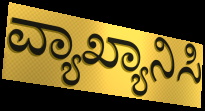
ವ್ಯಾಖ್ಯಾನಿಸಿ